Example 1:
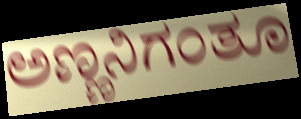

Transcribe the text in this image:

ಅಣ್ಣನಿಗಂತೂ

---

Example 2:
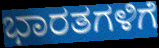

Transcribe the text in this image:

ಭಾರತಗಳಿಗೆ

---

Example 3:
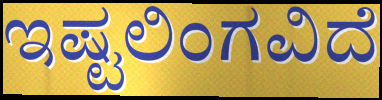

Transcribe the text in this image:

ಇಷ್ಟಲಿಂಗವಿದೆ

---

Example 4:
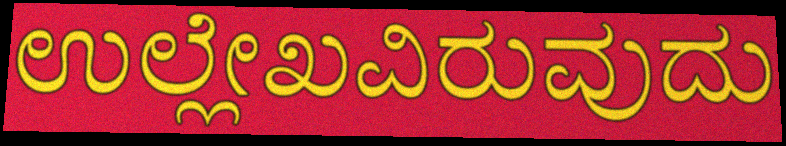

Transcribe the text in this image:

ಉಲ್ಲೇಖವಿರುವುದು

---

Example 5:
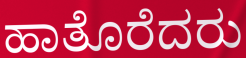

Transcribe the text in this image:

ಹಾತೊರೆದರು